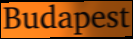
Budapest